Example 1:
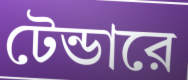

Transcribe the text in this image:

টেন্ডারে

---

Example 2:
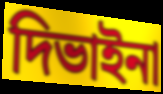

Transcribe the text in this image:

দিভাইনা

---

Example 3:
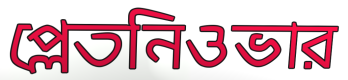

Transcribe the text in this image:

প্লেতনিওভার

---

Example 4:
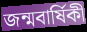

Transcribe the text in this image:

জন্মবার্ষিকী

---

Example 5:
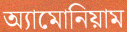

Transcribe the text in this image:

অ্যামোনিয়াম